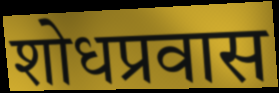
शोधप्रवास